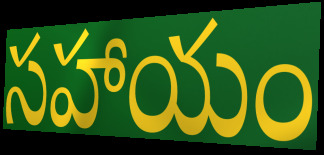
సహాయం